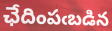
ఛేదింపఁబడిన